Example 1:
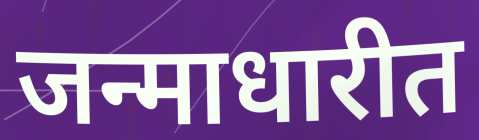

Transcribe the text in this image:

जन्माधारीत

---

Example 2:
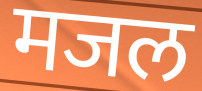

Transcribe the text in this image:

मजल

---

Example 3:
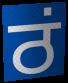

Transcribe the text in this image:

ठं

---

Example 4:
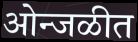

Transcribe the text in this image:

ओन्जळीत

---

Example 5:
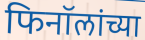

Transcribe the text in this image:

फिनॉलांच्या